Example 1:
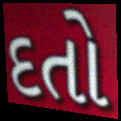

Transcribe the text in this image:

દતો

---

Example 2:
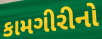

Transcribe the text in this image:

કામગીરીનો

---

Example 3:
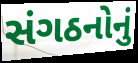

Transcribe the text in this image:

સંગઠનોનું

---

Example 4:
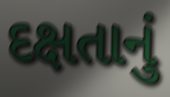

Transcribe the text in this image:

દક્ષતાનું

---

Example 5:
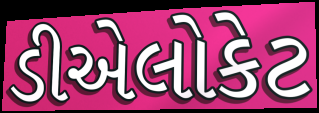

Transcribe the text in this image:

ડીએલોકેટ